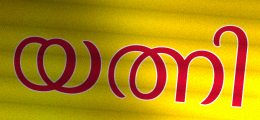
യത്നി